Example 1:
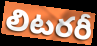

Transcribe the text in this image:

లిటరరీ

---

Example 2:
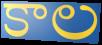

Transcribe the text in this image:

కాల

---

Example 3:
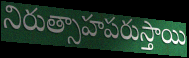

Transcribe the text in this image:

నిరుత్సాహపరుస్తాయి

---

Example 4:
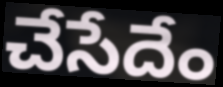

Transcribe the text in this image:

చేసేదేం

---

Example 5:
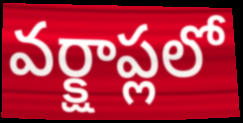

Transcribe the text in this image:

వర్క్షాప్లలో